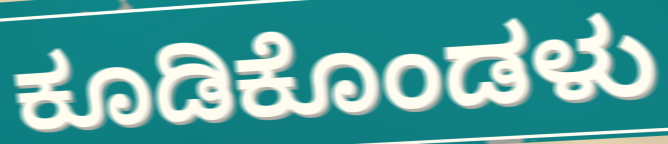
ಕೂಡಿಕೊಂಡಳು